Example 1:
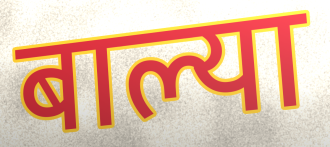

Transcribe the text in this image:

बाल्या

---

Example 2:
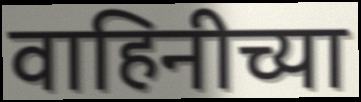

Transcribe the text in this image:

वाहिनीच्या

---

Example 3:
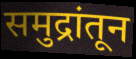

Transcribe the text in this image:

समुद्रांतून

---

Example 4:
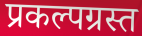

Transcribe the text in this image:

प्रकल्पग्रस्त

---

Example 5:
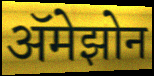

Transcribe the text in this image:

ॲमेझोन